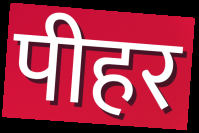
पीहर